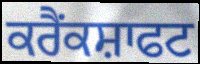
ਕਰੈਂਕਸ਼ਾਫਟ